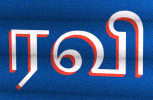
ரவி